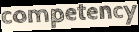
competency